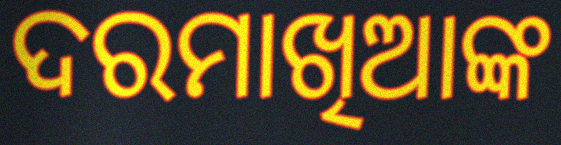
ଦରମାଖିଆଙ୍କ